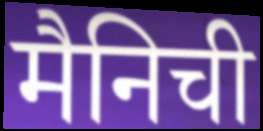
मैनिची